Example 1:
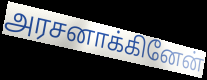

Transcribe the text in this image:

அரசனாக்கினேன்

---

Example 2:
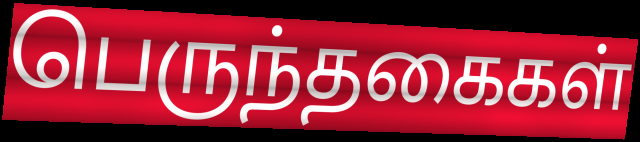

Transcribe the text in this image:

பெருந்தகைகள்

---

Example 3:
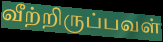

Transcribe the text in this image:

வீற்றிருப்பவள்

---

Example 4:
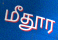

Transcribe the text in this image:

மீதூர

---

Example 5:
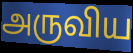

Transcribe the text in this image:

அருவிய